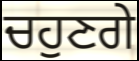
ਚਹੁਣਗੇ